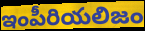
ఇంపీరియలిజం